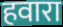
हवारा